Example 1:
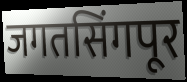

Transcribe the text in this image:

जगतसिंगपूर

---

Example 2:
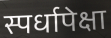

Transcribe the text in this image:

स्पर्धापेक्षा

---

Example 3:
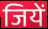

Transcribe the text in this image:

जियें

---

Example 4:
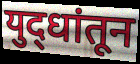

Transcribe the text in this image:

युद्धांतून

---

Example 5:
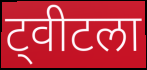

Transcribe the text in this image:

ट्वीटला